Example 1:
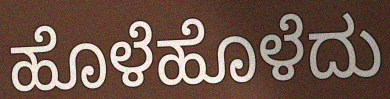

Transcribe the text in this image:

ಹೊಳೆಹೊಳೆದು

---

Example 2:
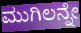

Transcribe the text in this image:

ಮುಗಿಲನ್ನೇ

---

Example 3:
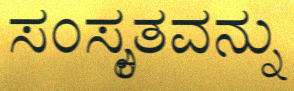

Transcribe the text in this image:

ಸಂಸ್ಕೃತವನ್ನು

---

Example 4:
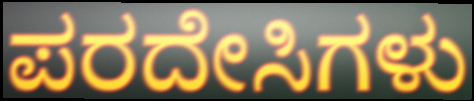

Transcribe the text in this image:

ಪರದೇಸಿಗಳು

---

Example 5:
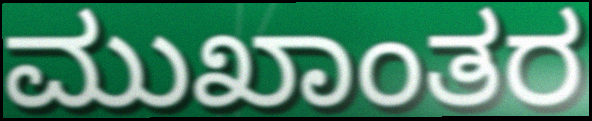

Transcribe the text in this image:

ಮುಖಾಂತರ